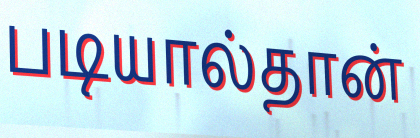
படியால்தான்